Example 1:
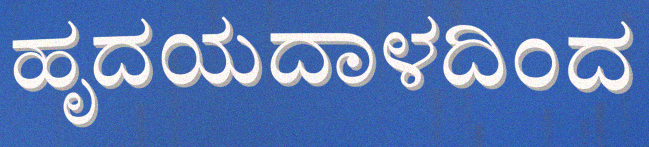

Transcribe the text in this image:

ಹೃದಯದಾಳದಿಂದ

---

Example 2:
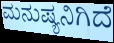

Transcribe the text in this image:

ಮನುಷ್ಯನಿಗಿದೆ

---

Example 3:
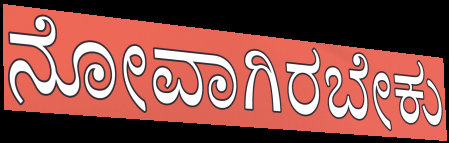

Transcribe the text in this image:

ನೋವಾಗಿರಬೇಕು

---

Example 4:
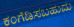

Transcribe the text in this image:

ಕಂಗೆಡಿಸಬಹುದು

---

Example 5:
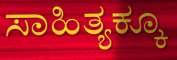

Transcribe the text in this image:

ಸಾಹಿತ್ಯಕ್ಕೂ